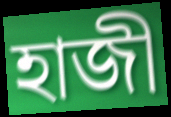
হাজী